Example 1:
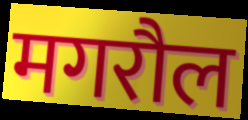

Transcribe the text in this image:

मगरौल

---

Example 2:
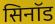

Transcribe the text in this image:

सिनॉड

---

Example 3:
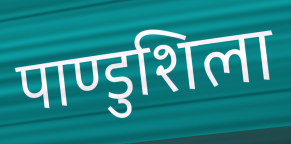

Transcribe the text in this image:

पाण्डुशिला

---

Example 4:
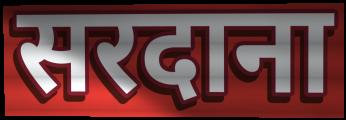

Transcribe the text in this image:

सरदाना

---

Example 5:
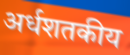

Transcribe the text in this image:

अर्धशतकीय